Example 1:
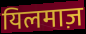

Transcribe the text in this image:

यिलमाज़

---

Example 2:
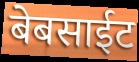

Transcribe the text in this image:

बेबसाईट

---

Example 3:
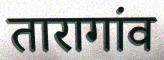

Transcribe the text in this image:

तारागांव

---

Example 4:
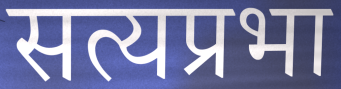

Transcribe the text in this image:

सत्यप्रभा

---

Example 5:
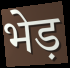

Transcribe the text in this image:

भेड़